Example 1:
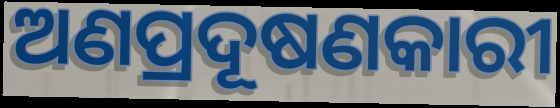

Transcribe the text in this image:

ଅଣପ୍ରଦୂଷଣକାରୀ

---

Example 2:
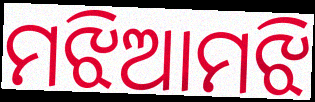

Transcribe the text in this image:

ମଝିଆମଝି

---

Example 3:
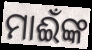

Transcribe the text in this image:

ମାଈଁଙ୍କ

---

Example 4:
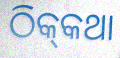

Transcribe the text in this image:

ଠିକ୍‌କଥା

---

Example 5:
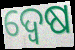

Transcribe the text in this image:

ଦ୍ବେଷ